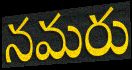
నమరు